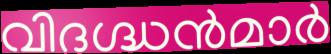
വിദഗ്ദ്ധൻമാർ